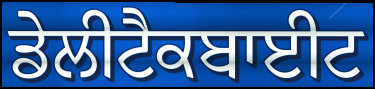
ਡੇਲੀਟੈਕਬਾਈਟ